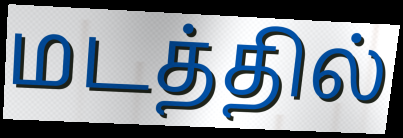
மடத்தில்